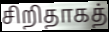
சிறிதாகத்